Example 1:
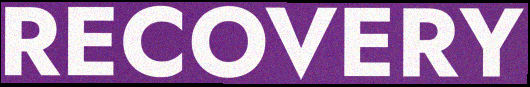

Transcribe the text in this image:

RECOVERY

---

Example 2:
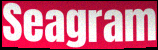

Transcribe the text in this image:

Seagram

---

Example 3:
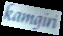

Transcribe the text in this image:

kamgiri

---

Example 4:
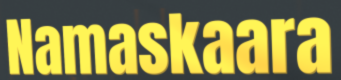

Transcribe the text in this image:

Namaskaara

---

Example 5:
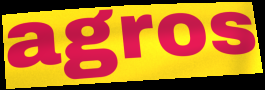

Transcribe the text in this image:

agros